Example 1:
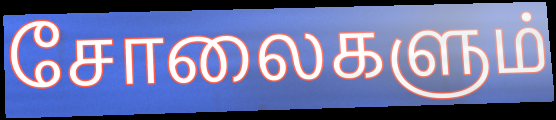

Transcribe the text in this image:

சோலைகளும்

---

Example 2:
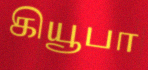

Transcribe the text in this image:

கியூபா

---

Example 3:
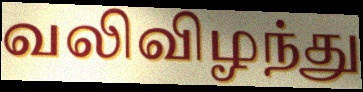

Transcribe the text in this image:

வலிவிழந்து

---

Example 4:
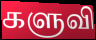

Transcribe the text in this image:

களுவி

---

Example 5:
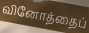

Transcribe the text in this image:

வினோத்தைப்